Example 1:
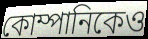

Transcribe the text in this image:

কোম্পানিকেও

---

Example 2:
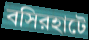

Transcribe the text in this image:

বসিরহাটে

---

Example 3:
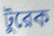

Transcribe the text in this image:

টুরেক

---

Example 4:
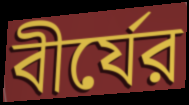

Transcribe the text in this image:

বীর্যের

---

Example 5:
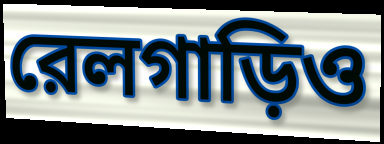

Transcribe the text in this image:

রেলগাড়িও